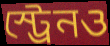
স্ট্রেনও